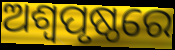
ଅଶ୍ଵପୃଷ୍ଠରେ